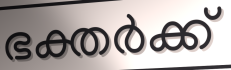
ഭക്തർക്ക്